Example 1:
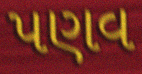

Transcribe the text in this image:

પણવ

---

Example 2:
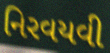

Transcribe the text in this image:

નિરવયવી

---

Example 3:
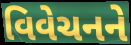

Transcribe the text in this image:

વિવેચનને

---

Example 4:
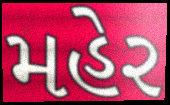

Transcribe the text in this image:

મહેર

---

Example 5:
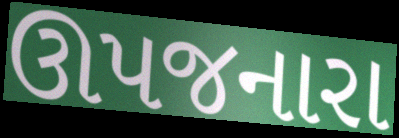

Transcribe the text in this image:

ઊપજનારા